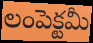
లంపెక్టమీ